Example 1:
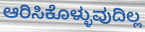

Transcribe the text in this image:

ಆರಿಸಿಕೊಳ್ಳುವುದಿಲ್ಲ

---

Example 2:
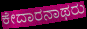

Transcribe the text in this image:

ಕೇದಾರನಾಥರು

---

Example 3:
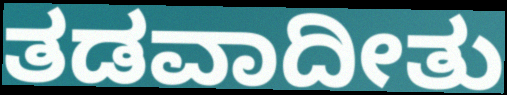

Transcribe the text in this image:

ತಡವಾದೀತು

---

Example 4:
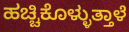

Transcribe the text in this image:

ಹಚ್ಚಿಕೊಳ್ಳುತ್ತಾಳೆ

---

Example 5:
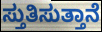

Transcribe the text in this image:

ಸ್ತುತಿಸುತ್ತಾನೆ